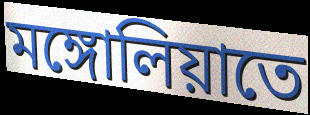
মঙ্গোলিয়াতে